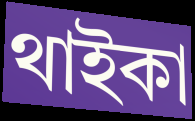
থাইকা